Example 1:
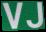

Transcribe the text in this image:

VJ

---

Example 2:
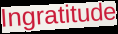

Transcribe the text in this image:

Ingratitude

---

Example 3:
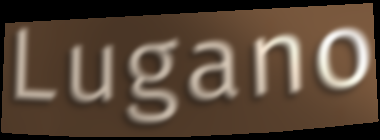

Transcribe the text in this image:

Lugano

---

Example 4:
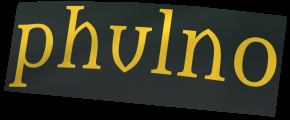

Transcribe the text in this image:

phulno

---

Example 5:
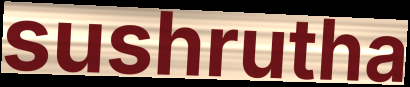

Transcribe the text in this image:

sushrutha